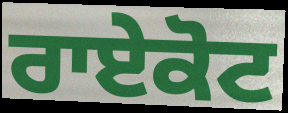
ਰਾਏਕੋਟ